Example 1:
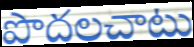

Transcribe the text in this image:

పొదలచాటు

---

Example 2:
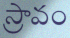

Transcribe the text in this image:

స్రావం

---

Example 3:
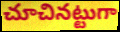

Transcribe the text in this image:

చూచినట్టుగా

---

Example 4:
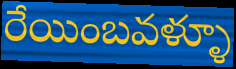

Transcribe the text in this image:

రేయింబవళ్ళూ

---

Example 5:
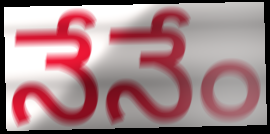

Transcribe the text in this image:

నేనేం